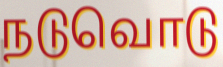
நடுவொடு